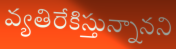
వ్యతిరేకిస్తున్నానని